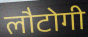
लौटोगी